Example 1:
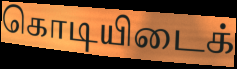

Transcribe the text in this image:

கொடியிடைக்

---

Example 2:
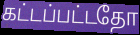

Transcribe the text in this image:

கட்டப்பட்டதோ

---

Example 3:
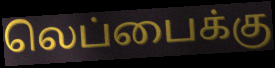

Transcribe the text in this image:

லெப்பைக்கு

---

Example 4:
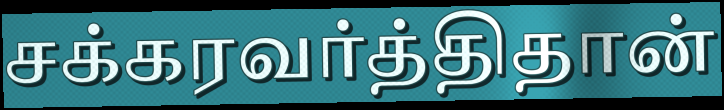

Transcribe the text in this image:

சக்கரவர்த்திதான்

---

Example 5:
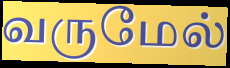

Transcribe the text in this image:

வருமேல்